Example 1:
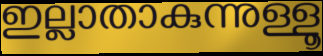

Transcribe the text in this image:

ഇല്ലാതാകുന്നുള്ളൂ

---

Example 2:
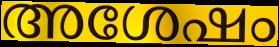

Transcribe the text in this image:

അശേഷം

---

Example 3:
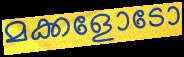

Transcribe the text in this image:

മക്കളോടോ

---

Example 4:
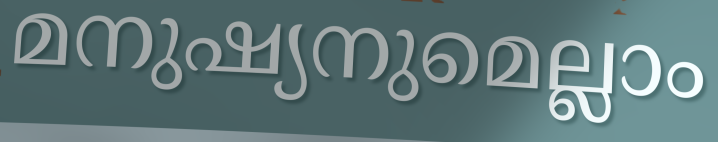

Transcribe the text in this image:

മനുഷ്യനുമെല്ലാം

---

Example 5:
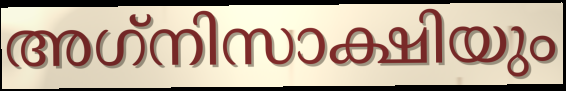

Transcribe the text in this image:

അഗ്‌നിസാക്ഷിയും